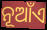
ନୂଆଁଏ